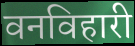
वनविहारी